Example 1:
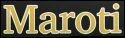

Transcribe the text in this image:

Maroti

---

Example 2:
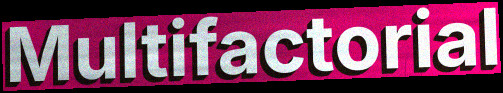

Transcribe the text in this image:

Multifactorial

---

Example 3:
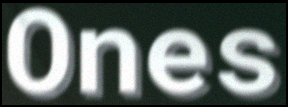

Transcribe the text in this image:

Ones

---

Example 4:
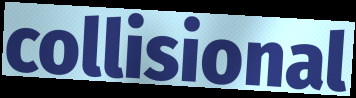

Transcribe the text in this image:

collisional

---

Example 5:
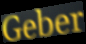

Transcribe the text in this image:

Geber